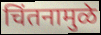
चिंतनामुळे